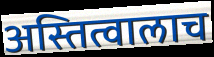
अस्तित्वालाच